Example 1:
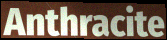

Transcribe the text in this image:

Anthracite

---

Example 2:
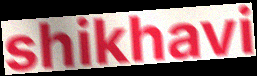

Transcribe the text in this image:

shikhavi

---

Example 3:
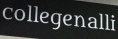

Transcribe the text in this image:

collegenalli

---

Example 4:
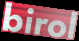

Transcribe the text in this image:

birol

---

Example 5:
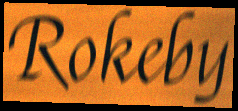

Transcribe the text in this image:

Rokeby